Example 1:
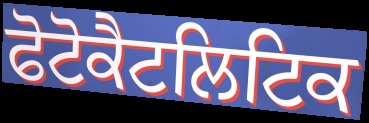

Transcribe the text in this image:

ਫੋਟੋਕੈਟਲਿਟਿਕ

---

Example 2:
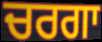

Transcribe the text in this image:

ਚਰਗਾ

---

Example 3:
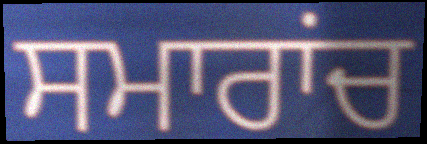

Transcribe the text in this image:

ਸਮਾਰਾਂਚ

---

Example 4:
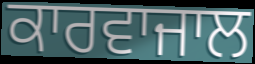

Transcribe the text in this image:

ਕਾਰਵਾਜਾਲ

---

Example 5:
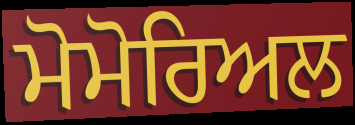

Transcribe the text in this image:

ਮੋਮੋਰਿਅਲ